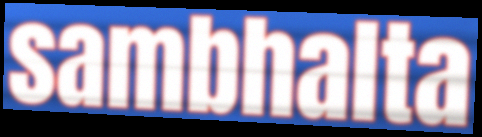
sambhalta